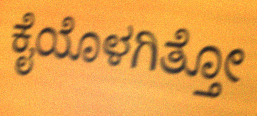
ಕೈಯೊಳಗಿತ್ತೋ